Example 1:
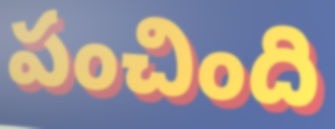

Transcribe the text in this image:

పంచింది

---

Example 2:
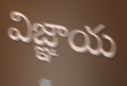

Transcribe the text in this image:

విజ్ఞాయ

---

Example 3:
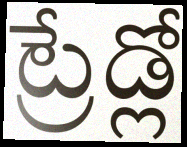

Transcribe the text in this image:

ట్రేడ్లో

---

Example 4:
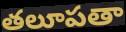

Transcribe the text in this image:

తలూపతా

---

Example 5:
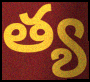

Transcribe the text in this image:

త్య